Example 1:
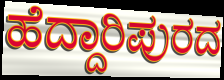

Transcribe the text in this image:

ಹೆದ್ದಾರಿಪುರದ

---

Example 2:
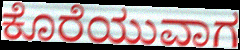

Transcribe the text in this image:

ಕೊರೆಯುವಾಗ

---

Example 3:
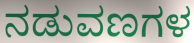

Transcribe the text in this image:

ನಡುವಣಗಳ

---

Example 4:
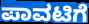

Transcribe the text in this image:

ಪಾವಟಿಗೆ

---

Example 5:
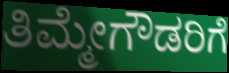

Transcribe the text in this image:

ತಿಮ್ಮೇಗೌಡರಿಗೆ